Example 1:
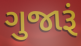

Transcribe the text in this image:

ગુજારૂં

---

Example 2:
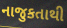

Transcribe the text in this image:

નાજુકતાથી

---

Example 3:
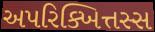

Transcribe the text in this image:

અપરિક્ખિત્તસ્સ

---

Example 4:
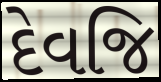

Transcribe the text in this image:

દેવજિ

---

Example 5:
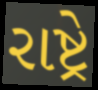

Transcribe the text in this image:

રાષ્ટ્રે